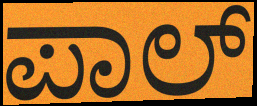
ಪಾಲ್